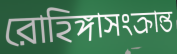
রোহিঙ্গাসংক্রান্ত